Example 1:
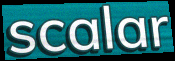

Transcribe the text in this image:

scalar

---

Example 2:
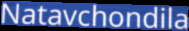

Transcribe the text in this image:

Natavchondila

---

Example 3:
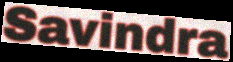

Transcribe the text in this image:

Savindra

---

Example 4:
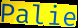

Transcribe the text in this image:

Palie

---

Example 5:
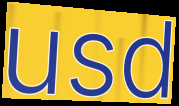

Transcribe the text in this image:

usd